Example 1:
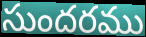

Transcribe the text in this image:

సుందరము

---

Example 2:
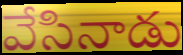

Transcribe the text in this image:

వేసినాడు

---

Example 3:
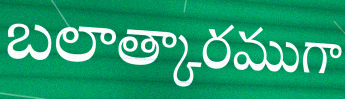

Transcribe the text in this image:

బలాత్కారముగా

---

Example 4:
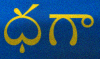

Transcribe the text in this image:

ధగా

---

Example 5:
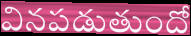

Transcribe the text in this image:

వినపడుతుందో